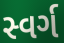
સ્વર્ગ